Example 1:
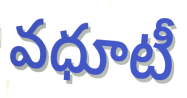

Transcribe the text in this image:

వధూటీ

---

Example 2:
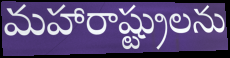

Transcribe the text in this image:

మహారాష్ట్రులను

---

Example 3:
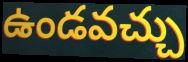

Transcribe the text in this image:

ఉండవచ్చు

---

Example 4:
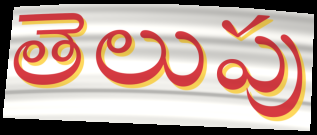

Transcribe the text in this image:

తెలుపు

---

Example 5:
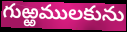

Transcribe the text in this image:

గుఱ్ఱములకును